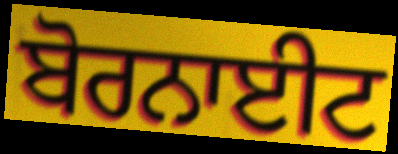
ਬੋਰਨਾਈਟ